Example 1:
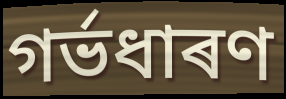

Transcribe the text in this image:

গৰ্ভধাৰণ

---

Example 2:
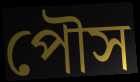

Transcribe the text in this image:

পৌস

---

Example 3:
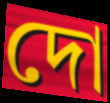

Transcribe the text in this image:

দো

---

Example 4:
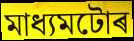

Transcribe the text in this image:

মাধ্যমটোৰ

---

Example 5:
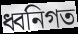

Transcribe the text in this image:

ধ্বনিগত